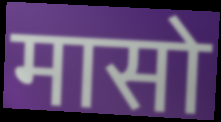
मासो